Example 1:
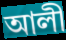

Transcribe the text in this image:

আলী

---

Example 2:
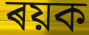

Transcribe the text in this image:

ৰয়ক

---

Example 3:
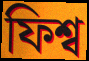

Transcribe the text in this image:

ফিশ্ব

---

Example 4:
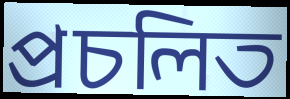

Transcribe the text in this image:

প্ৰচলিত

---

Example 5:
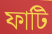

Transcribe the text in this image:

ফাটি